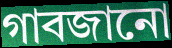
গাবজানো